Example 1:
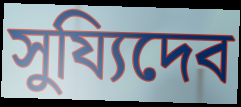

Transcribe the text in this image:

সুয্যিদেব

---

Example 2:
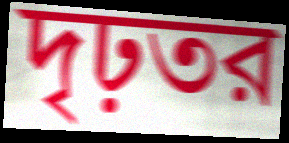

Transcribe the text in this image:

দৃঢ়তর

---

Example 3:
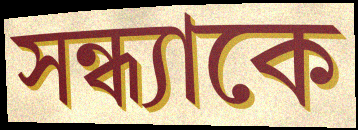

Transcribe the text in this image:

সন্ধ্যাকে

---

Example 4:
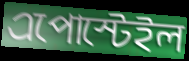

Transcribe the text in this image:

এপোস্টেইল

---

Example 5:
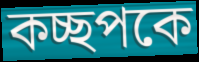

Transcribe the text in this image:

কচ্ছপকে